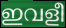
ഇവളീ